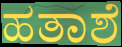
ಹತಾಶೆ